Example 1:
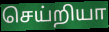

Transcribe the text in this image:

செய்றியா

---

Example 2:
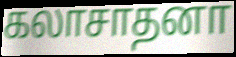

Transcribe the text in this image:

கலாசாதனா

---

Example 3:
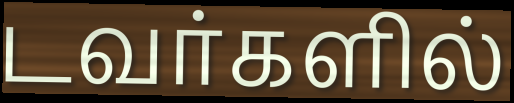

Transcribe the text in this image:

டவர்களில்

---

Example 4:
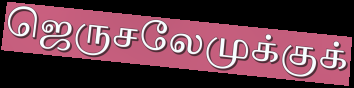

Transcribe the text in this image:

ஜெருசலேமுக்குக்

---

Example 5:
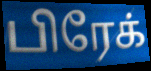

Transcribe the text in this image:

பிரேக்